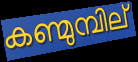
കണ്മുമ്പില്